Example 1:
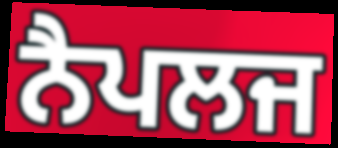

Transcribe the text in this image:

ਨੈਪਲਜ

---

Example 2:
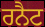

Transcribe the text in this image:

ਰਨੈਟ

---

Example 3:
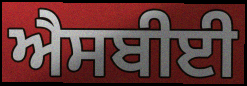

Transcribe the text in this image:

ਐਸਬੀਈ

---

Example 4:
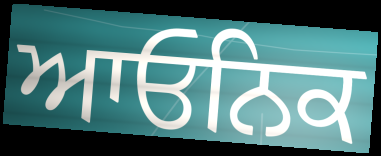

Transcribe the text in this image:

ਆਓਨਿਕ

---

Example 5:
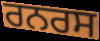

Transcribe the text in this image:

ਰਨਰਸ